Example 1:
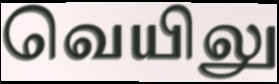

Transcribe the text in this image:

வெயிலு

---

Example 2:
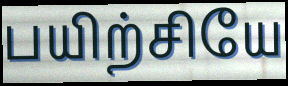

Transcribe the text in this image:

பயிற்சியே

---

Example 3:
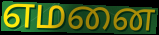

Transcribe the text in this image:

எமனை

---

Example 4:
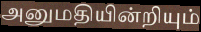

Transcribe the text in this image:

அனுமதியின்றியும்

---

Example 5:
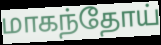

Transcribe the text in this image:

மாகந்தோய்